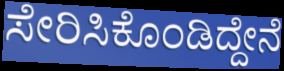
ಸೇರಿಸಿಕೊಂಡಿದ್ದೇನೆ